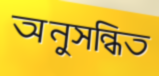
অনুসন্ধিত